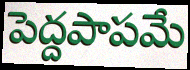
పెద్దపాపమే